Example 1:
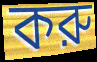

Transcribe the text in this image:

করু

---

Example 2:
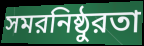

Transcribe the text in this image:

সমরনিষ্ঠুরতা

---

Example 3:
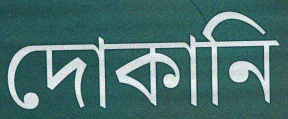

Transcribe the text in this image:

দোকানি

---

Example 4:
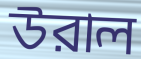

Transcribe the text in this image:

উরাল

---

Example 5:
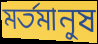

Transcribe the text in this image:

মর্তমানুষ